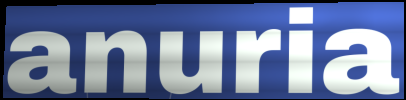
anuria